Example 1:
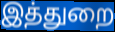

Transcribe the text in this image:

இத்துறை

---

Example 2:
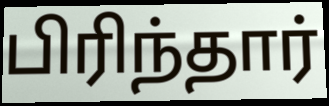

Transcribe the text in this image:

பிரிந்தார்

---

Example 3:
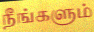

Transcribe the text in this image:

நீங்களும்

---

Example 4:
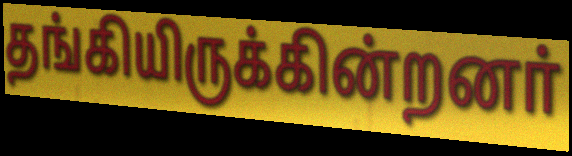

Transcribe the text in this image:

தங்கியிருக்கின்றனர்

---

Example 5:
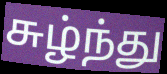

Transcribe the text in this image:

சுழ்ந்து